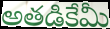
అతడికేమీ